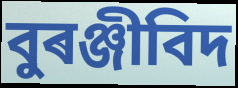
বুৰঞ্জীবিদ